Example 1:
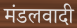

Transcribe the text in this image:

मंडलवादी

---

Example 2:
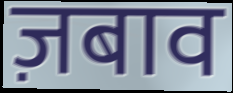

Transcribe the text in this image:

ज़बाव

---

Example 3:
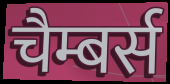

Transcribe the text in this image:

चैम्‍बर्स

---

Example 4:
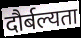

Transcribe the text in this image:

दौर्बल्यता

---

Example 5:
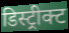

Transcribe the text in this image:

डिस्ट्रीक्ट